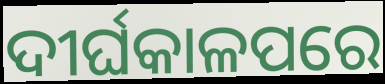
ଦୀର୍ଘକାଳପରେ